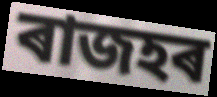
ৰাজহৰ